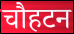
चौहटन